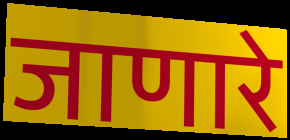
जाणारे